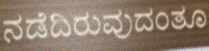
ನಡೆದಿರುವುದಂತೂ